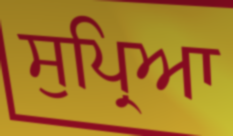
ਸੁਪ੍ਰਿਆ